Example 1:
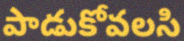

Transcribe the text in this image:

పాడుకోవలసి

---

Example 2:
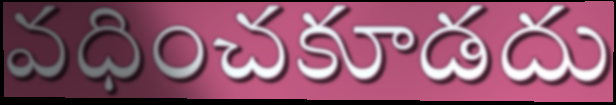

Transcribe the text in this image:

వధించకూడదు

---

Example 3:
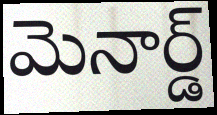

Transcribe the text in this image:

మెనార్డ్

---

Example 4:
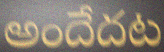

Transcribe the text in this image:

అందేదట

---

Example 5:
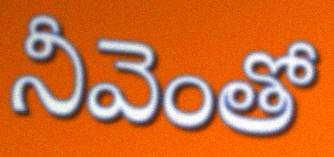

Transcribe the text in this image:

నీవెంతో